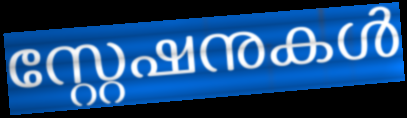
സ്റ്റേഷനുകൾ